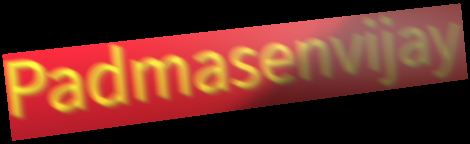
Padmasenvijay